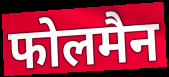
फोलमैन